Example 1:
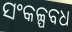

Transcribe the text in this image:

ସଂକଳ୍ପବଧ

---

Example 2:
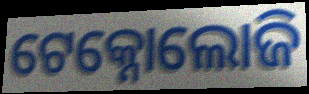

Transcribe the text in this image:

ଟେକ୍ନୋଲୋଜି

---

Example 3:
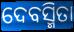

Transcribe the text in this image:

ଦେବସ୍ମିତା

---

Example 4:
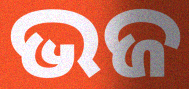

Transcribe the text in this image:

ଭଜ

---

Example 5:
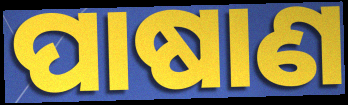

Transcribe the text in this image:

ପାଷାଣ